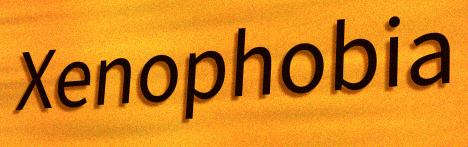
Xenophobia